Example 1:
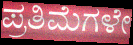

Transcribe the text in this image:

ಪ್ರತಿಮೆಗಳೇ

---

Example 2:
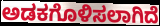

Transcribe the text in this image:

ಅಡಕಗೊಳಿಸಲಾಗಿದೆ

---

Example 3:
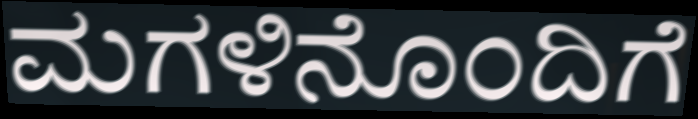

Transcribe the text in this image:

ಮಗಳಿನೊಂದಿಗೆ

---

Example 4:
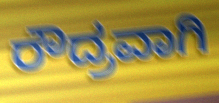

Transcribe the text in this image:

ರೌದ್ರವಾಗಿ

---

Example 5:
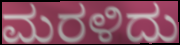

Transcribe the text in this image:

ಮರಳಿದು